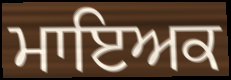
ਮਾਇਅਕ